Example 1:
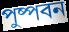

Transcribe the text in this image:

পুষ্পবন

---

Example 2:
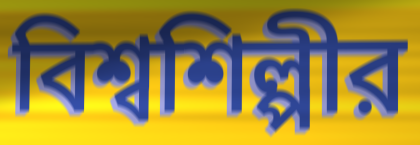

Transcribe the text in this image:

বিশ্বশিল্পীর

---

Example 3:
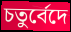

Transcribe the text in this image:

চতুর্বেদে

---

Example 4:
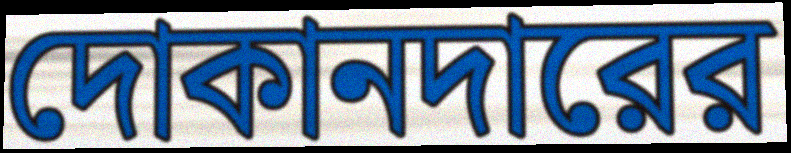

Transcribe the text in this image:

দোকানদারের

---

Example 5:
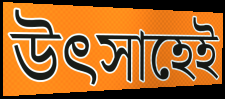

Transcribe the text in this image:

উৎসাহেই